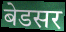
बेडसर